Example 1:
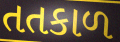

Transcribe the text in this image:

તતકાળ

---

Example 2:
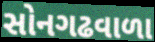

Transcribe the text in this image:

સોનગઢવાળા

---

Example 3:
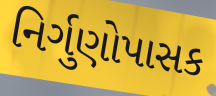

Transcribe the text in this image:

નિર્ગુણોપાસક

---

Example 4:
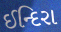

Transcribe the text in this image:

ઈન્દિરા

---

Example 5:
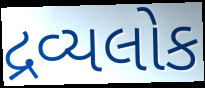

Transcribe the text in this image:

દ્રવ્યલોક